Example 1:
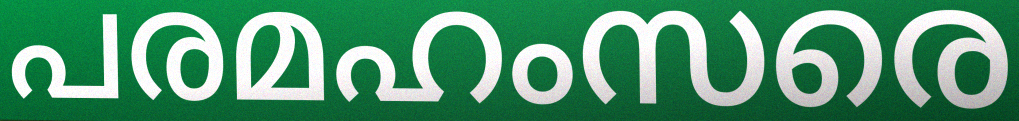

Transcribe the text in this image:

പരമഹംസരെ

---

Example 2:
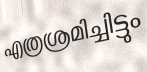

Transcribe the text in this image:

എത്രശ്രമിച്ചിട്ടും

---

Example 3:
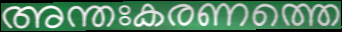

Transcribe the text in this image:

അന്തഃകരണത്തെ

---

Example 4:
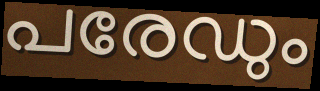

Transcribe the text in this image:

പരേഡും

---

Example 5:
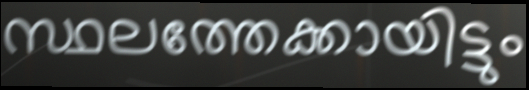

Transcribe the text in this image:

സ്ഥലത്തേക്കായിട്ടും